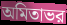
অমিতাভর